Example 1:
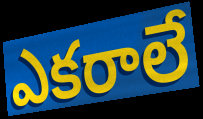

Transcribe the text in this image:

ఎకరాలే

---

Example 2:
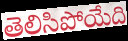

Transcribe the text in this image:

తెలిసిపోయేది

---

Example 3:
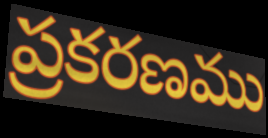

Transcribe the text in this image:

ప్రకరణము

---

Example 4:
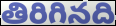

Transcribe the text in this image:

తిరిగినది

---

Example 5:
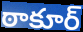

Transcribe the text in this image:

ఠాకూర్